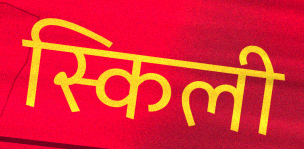
स्किली